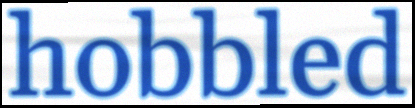
hobbled